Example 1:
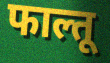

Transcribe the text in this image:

फाल्तू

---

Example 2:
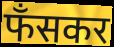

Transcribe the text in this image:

फँसकर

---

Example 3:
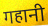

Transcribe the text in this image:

गहानी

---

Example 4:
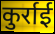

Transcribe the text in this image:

कुर्राई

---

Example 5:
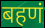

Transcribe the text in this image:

बहणं